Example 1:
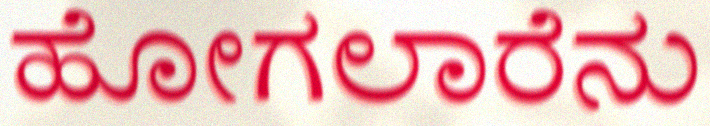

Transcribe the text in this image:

ಹೋಗಲಾರೆನು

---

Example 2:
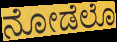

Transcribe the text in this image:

ನೋಡೆಲೊ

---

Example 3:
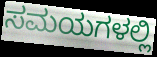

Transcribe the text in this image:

ಸಮಯಗಳಲ್ಲಿ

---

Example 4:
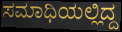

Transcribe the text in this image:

ಸಮಾಧಿಯಲ್ಲಿದ್ದ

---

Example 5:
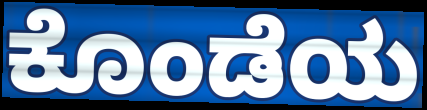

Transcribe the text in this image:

ಕೊಂಡೆಯ